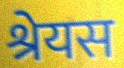
श्रेयस